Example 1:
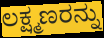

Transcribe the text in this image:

ಲಕ್ಷ್ಮಣರನ್ನು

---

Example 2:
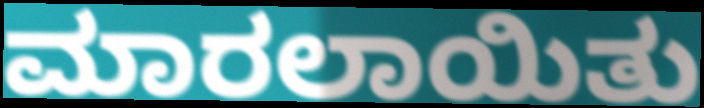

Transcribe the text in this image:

ಮಾರಲಾಯಿತು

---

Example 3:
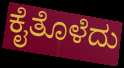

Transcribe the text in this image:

ಕೈತೊಳೆದು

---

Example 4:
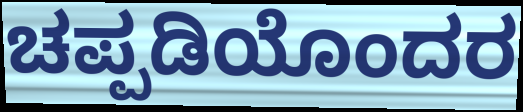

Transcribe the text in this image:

ಚಪ್ಪಡಿಯೊಂದರ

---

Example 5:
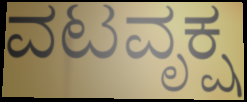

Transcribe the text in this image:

ವಟವೃಕ್ಷ